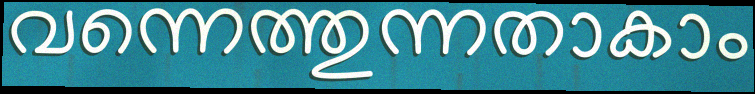
വന്നെത്തുന്നതാകാം